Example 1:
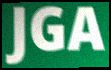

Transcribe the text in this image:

JGA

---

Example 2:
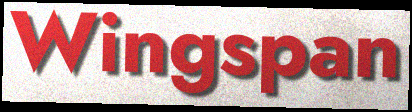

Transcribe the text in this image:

Wingspan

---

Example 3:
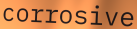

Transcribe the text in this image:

corrosive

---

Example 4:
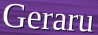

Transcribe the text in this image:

Geraru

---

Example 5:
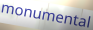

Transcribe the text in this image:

monumental